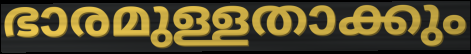
ഭാരമുള്ളതാക്കും